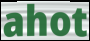
ahot